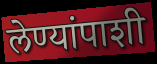
लेण्यांपाशी